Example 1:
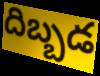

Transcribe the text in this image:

దిబ్బడ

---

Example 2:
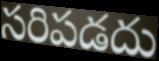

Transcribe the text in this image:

సరిపడదు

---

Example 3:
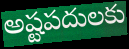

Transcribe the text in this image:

అష్టపదులకు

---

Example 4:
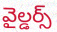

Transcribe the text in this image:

వైల్డర్స్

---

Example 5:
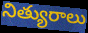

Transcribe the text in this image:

నిత్యురాలు